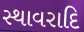
સ્થાવરાદિ